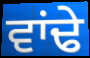
ਵਾਂਢੇ